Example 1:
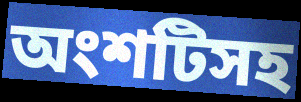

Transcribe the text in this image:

অংশটিসহ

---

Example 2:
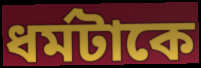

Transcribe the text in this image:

ধর্মটাকে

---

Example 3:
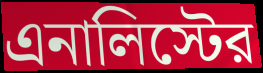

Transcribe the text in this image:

এনালিস্টের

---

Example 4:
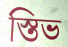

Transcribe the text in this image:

স্তিভ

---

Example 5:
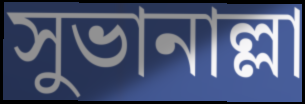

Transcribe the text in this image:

সুভানাল্লা